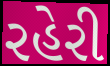
રહેરી